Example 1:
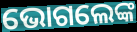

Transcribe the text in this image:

ଭୋଗଲେଙ୍କ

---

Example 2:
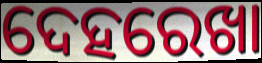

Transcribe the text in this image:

ଦେହରେଖା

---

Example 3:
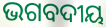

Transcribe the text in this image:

ଭଗବଦୀୟ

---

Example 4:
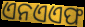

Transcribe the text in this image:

ଏନଏଏଫ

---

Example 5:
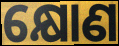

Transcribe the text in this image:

କ୍ଷୋଣ